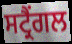
ਸਟ੍ਰੈਂਗਲ